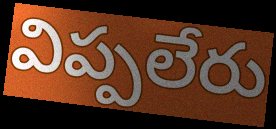
విప్పలేరు